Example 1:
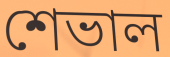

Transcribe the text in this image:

শেভাল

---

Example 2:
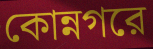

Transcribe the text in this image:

কোন্নগরে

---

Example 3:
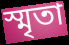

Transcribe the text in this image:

স্মৃতা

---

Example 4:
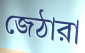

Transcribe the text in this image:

জেঠারা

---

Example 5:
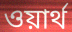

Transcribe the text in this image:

ওয়ার্থ